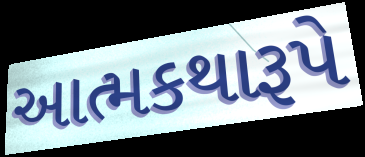
આત્મકથારૂપે